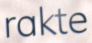
rakte